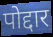
पोद्दार